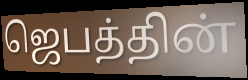
ஜெபத்தின்